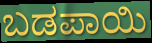
ಬಡಪಾಯಿ